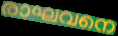
രാഘവനെ